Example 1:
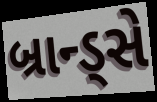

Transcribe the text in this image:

બ્રાન્ડ્સે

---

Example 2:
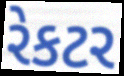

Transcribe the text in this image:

રેકટર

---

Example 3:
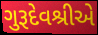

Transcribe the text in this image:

ગુરૂદેવશ્રીએ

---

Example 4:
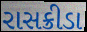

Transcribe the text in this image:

રાસક્રીડા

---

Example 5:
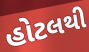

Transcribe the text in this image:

હોટલથી